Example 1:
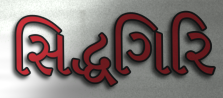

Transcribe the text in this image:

સિદ્ધગિરિ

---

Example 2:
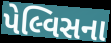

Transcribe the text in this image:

પેલ્વિસના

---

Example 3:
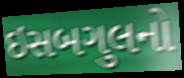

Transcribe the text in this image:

ઇસબગુલનો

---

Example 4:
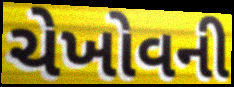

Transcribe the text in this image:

ચેખોવની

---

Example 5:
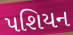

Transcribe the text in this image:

પશિયન